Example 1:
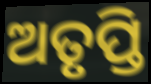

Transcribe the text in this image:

ଅତୃପ୍ତି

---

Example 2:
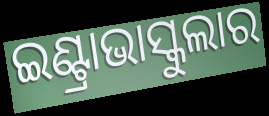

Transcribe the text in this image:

ଇଣ୍ଟ୍ରାଭାସ୍କୁଲାର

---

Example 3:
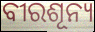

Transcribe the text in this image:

ବୀରଶୂନ୍ୟ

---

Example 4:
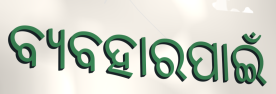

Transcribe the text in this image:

ବ୍ୟବହାରପାଇଁ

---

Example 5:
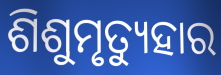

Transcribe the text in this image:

ଶିଶୁମୃତ୍ୟୁହାର